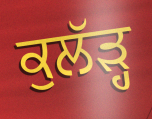
ਕੁਲੱੜ੍ਹ